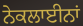
ਨੇਕਲਾਈਨਾਂ